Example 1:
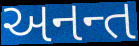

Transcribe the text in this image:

અનન્ત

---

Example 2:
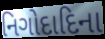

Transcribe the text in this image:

નિગોદાદિના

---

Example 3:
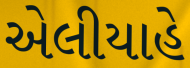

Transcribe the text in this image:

એલીયાહે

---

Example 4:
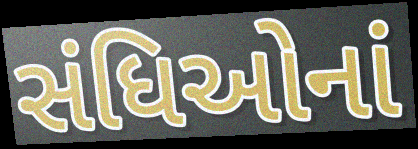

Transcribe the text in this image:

સંધિઓનાં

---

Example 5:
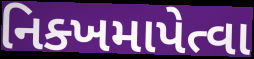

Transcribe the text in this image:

નિક્ખમાપેત્વા